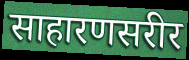
साहारणसरीर